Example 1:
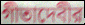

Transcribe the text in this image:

গীতাদেবীর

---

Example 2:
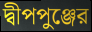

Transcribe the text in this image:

দ্বীপপুঞ্জের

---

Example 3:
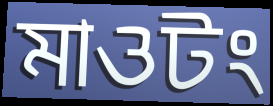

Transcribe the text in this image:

মাওটং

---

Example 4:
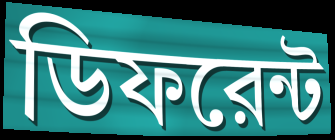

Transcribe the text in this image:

ডিফরেন্ট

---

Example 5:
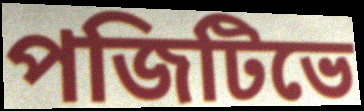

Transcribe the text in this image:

পজিটিভে